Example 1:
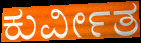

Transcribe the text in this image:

ಕುರ್ವೀತ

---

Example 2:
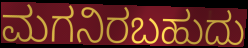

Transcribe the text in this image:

ಮಗನಿರಬಹುದು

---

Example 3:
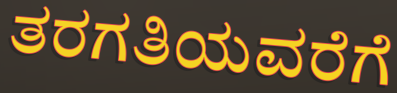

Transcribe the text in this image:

ತರಗತಿಯವರೆಗೆ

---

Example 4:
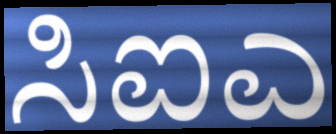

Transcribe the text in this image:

ಸಿಐಎ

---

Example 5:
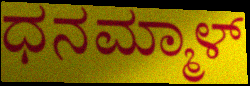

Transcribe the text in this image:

ಧನಮ್ಮಾಳ್